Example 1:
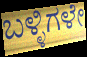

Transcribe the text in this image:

ಬಳ್ಳಿಗಳೇ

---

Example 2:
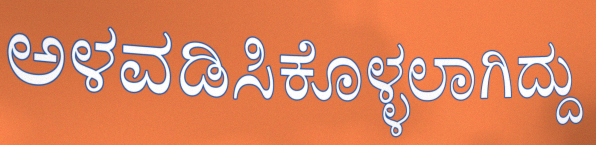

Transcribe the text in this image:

ಅಳವಡಿಸಿಕೊಳ್ಳಲಾಗಿದ್ದು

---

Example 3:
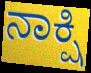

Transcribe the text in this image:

ನಾಕ್ಷಿ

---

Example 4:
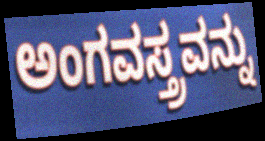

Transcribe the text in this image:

ಅಂಗವಸ್ತ್ರವನ್ನು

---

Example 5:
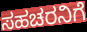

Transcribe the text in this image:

ಸಹಚರನಿಗೆ